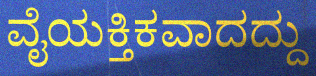
ವೈಯಕ್ತಿಕವಾದದ್ದು